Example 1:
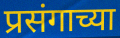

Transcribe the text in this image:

प्रसंगाच्या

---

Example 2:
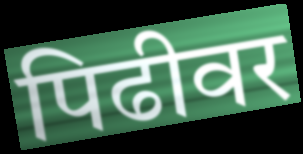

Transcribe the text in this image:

पिढीवर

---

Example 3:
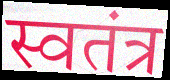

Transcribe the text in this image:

स्वतंत्र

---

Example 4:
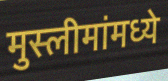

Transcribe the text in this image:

मुस्लीमांमध्ये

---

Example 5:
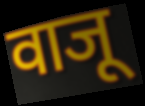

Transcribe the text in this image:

वाजू